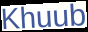
Khuub